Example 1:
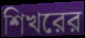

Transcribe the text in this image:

শিখরের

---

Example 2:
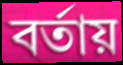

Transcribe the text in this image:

বর্তায়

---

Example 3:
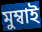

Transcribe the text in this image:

মুম্বাই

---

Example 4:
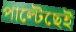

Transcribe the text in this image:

পাল্টেছেই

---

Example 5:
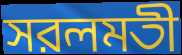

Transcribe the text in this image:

সরলমতী